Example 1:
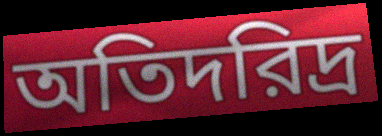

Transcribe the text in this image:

অতিদরিদ্র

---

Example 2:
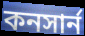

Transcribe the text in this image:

কনসার্ন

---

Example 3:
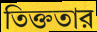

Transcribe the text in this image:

তিক্ততার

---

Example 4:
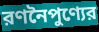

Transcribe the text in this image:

রণনৈপুণ্যের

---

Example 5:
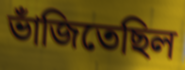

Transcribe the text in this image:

ভাঁজিতেছিল